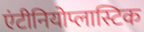
एंटीनियोप्लास्टिक